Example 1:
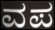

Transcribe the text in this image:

ವಪ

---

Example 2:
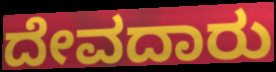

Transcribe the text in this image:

ದೇವದಾರು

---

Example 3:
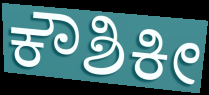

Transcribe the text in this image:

ಕೌಶಿಕೀ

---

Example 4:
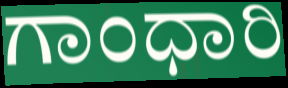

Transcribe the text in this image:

ಗಾಂಧಾರಿ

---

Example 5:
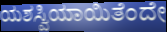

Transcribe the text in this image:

ಯಶಸ್ವಿಯಾಯಿತೆಂದೇ